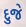
દુજે